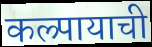
कल्पायाची